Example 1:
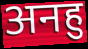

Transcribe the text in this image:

अनहु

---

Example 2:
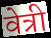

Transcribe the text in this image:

वेत्री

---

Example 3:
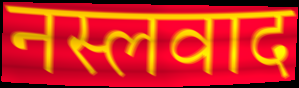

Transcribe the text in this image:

नस्लवाद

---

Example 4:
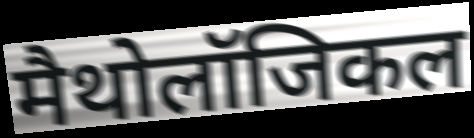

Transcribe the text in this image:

मैथोलॉजिकल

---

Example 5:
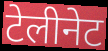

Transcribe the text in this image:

टेलीनेट